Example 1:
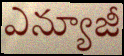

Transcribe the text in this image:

ఎన్యూజీ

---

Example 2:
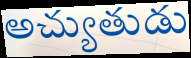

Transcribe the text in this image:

అచ్యుతుడు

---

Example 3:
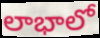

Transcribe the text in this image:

లాభాలో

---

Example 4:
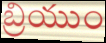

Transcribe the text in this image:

బ్రియుం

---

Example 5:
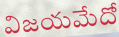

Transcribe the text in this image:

విజయమేదో